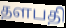
தளபதி